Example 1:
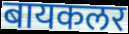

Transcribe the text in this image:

बायकलर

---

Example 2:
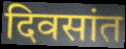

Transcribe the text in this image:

दिवसांत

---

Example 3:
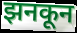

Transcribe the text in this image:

झनकून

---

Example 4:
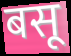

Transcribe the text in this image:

बसू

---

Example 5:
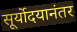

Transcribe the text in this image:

सूर्योदयानंतर